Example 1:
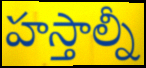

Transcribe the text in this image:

హస్తాల్నీ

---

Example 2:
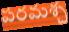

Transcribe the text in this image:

పరమశ్చ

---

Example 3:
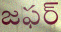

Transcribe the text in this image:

జఫర్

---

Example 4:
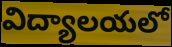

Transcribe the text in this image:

విద్యాలయలో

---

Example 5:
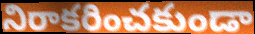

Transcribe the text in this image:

నిరాకరించకుండా